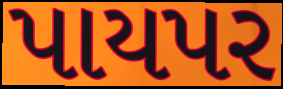
પાયપર